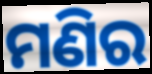
ମଣିର